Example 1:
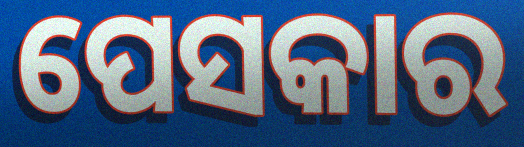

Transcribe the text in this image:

ପେସକାର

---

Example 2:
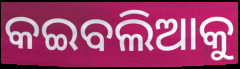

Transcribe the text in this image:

କଇବଲିଆକୁ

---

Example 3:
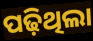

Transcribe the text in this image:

ପଢ଼ିଥିଲା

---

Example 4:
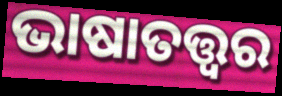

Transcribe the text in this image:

ଭାଷାତତ୍ତ୍ଵର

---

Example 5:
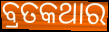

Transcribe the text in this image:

ବ୍ରତକଥାର